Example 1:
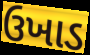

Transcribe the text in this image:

ઉખાડ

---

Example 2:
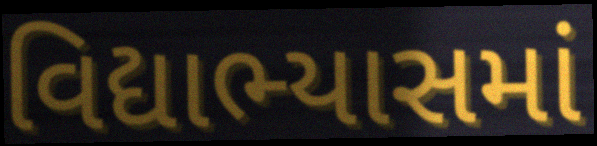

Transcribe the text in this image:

વિદ્યાભ્યાસમાં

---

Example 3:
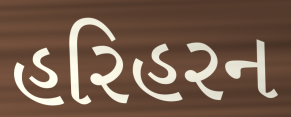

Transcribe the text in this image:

હરિહરન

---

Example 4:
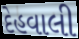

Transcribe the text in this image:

દેહવાલી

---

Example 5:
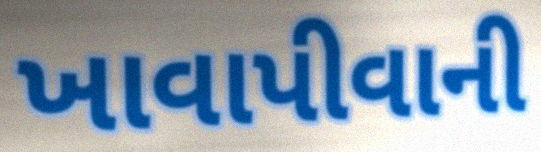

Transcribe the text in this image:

ખાવાપીવાની